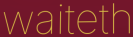
waiteth